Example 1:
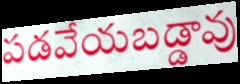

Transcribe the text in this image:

పడవేయబడ్డావు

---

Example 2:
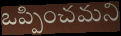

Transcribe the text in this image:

ఒప్పించమని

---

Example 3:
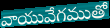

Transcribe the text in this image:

వాయువేగముతో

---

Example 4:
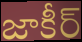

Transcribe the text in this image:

జాకీర్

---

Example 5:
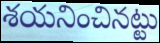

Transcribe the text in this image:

శయనించినట్టు